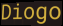
Diogo